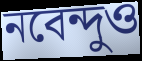
নবেন্দুও